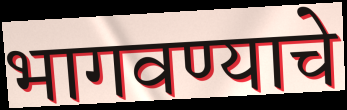
भागवण्याचे